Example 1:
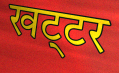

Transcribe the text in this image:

खट्‌टर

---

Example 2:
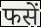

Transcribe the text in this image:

फसें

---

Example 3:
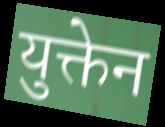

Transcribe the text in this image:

युक्तेन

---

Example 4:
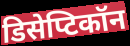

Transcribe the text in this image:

डिसेप्टिकॉन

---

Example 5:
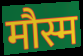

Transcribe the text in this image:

मौस्म